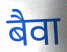
बैवा